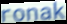
ronak